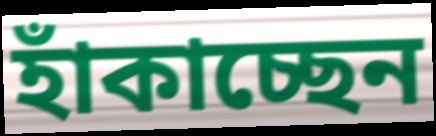
হাঁকাচ্ছেন